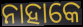
ନାହାକେ